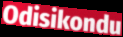
Odisikondu